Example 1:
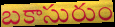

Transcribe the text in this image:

బకాసురుం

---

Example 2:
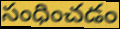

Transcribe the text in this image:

సంధించడం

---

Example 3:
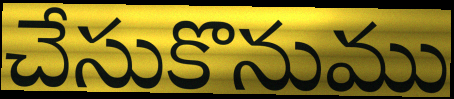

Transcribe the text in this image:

చేసుకొనుము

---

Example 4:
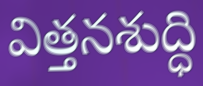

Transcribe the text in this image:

విత్తనశుద్ధి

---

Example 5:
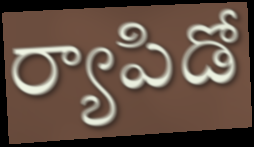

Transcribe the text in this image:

ర్యాపిడో